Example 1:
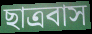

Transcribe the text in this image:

ছাত্রবাস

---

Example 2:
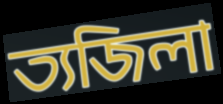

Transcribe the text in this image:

ত্যজিলা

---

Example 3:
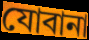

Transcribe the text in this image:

যোবানা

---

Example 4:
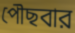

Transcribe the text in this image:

পৌছবার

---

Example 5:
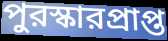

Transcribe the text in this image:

পুরস্কারপ্রাপ্ত